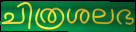
ചിത്രശലഭ